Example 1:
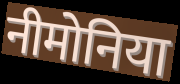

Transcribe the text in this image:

नीमोनिया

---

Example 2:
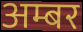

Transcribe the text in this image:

अम्‍बर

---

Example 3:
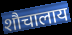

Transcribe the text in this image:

शौचालाय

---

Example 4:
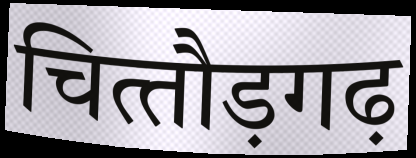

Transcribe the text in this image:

चित्‍तौड़गढ़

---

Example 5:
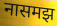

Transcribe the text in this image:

नासमझ